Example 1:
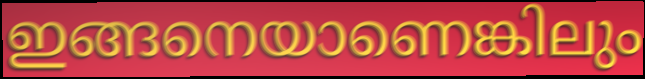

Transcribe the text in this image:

ഇങ്ങനെയാണെങ്കിലും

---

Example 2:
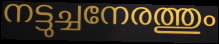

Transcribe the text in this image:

നട്ടുച്ചനേരത്തും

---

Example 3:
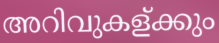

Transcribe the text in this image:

അറിവുകള്ക്കും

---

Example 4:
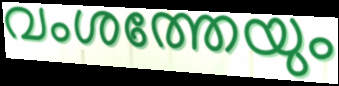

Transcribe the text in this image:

വംശത്തേയും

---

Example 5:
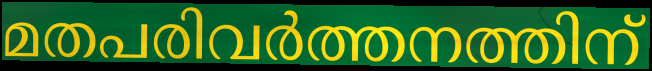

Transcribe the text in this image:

മതപരിവർത്തനത്തിന്